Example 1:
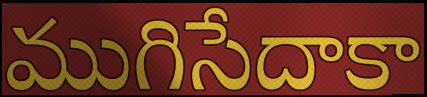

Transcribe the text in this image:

ముగిసేదాకా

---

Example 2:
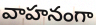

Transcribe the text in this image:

వాహనంగా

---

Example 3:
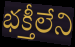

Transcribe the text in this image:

భక్తీలేని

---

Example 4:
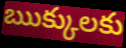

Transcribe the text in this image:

ఋక్కులకు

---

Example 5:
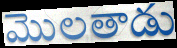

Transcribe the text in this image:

మొలతాడు